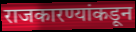
राजकारण्यांकडून